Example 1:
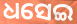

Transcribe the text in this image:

ଧସେଇ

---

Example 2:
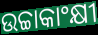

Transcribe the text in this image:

ଉଚ୍ଚାକାଂକ୍ଷୀ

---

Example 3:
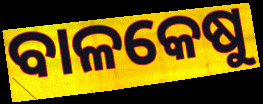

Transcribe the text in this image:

ବାଳକେଷୁ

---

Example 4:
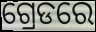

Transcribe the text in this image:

ଗ୍ରେଡରେ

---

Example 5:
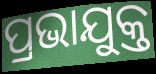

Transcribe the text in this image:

ପ୍ରଭାଯୁକ୍ତ